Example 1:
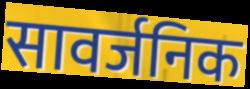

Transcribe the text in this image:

सावर्जनिक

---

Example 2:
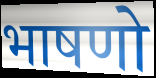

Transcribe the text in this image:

भाषणो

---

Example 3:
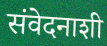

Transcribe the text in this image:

संवेदनाशी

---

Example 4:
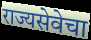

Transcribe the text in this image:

राज्यसेवेचा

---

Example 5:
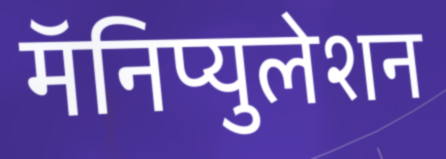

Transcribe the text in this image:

मॅनिप्युलेशन